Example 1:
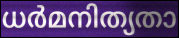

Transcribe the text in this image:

ധർമനിത്യതാ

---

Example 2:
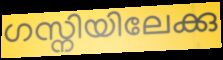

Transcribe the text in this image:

ഗസ്നിയിലേക്കു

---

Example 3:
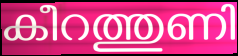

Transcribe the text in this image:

കീറത്തുണി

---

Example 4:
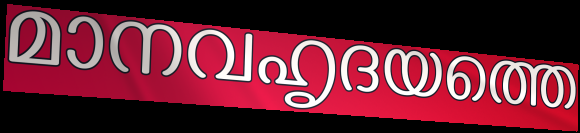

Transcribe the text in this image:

മാനവഹൃദയത്തെ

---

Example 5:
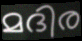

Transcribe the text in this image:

മദിര